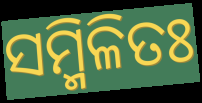
ସମ୍ମିଳିତଃ